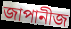
জাপানীজ